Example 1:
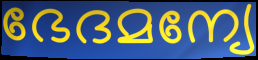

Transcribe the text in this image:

ഭേദമന്യേ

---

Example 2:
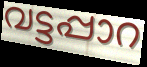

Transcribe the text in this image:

വട്ടപ്പാറ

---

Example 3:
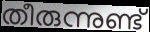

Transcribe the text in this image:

തീരുന്നുണ്ട്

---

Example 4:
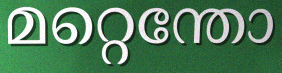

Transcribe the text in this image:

മറ്റെന്തോ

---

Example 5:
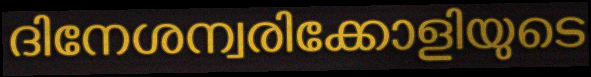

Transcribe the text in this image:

ദിനേശന്വരിക്കോളിയുടെ